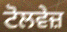
ਟੋਲਵੇਜ਼